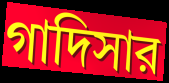
গাদিসার